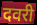
दवरी